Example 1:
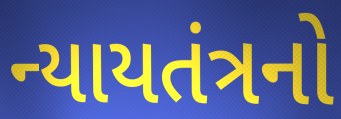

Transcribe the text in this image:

ન્યાયતંત્રનો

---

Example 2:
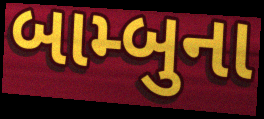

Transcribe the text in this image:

બામ્બુના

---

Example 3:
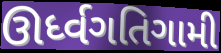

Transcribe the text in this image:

ઊર્ધ્વગતિગામી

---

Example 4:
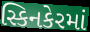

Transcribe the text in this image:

સ્કિનકેરમાં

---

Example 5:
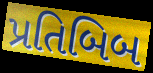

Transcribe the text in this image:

પ્રતિબિબ